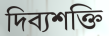
দিব্যশক্তি